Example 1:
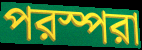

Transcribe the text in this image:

পরস্পরা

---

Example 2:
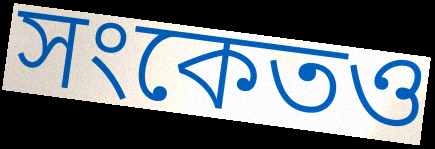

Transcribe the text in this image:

সংকেতও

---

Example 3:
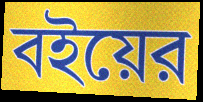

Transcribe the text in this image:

বইয়ের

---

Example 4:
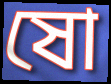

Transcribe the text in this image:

ষো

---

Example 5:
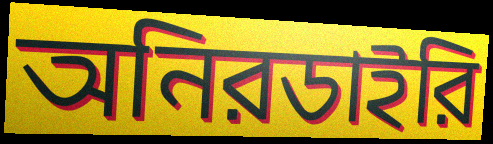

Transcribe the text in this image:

অনিরডাইরি